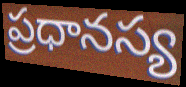
ప్రధానస్య